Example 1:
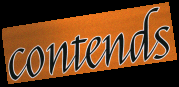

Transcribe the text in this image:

contends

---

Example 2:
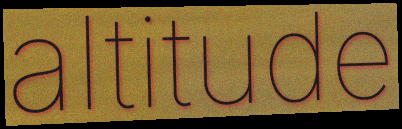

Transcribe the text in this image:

altitude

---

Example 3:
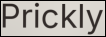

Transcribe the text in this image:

Prickly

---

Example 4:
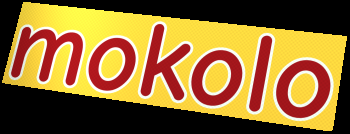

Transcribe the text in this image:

mokolo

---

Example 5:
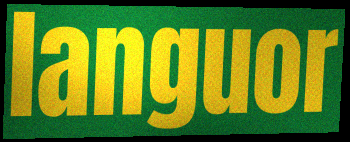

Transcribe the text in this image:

languor